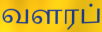
வளரப்